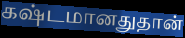
கஷ்டமானதுதான்